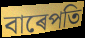
বাৰেপতি